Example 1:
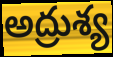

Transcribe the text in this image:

అద్రుశ్య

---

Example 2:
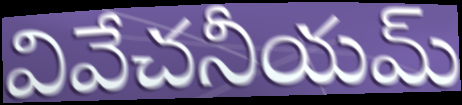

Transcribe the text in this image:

వివేచనీయమ్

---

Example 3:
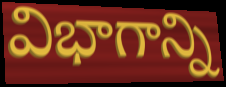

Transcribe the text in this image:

విభాగాన్ని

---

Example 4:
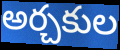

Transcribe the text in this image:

అర్చకుల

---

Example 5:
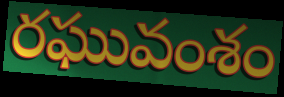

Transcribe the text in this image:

రఘువంశం